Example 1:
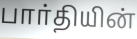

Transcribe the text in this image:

பார்தியின்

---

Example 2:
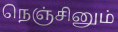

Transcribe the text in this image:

நெஞ்சினும்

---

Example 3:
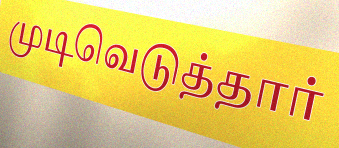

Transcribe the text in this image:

முடிவெடுத்தார்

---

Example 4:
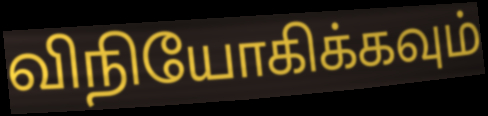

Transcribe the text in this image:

விநியோகிக்கவும்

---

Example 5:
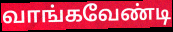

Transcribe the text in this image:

வாங்கவேண்டி